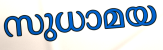
സുധാമയ